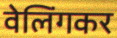
वेलिंगकर